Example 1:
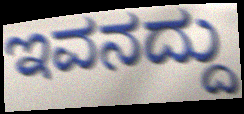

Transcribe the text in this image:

ಇವನದ್ದು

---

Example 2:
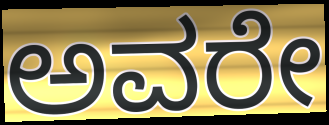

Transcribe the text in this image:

ಅವರೇ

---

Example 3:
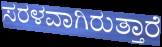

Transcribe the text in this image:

ಸರಳವಾಗಿರುತ್ತಾರೆ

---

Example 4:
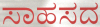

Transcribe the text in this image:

ಸಾಹಸದ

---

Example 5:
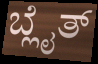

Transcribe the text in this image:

ಬ್ಲೈತ್